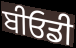
ਬੀਓਡੀ